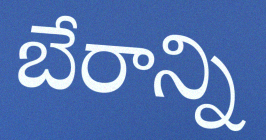
బేరాన్ని